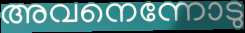
അവനെന്നോടു